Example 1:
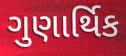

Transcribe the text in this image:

ગુણાર્થિક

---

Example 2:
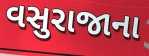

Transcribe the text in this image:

વસુરાજાના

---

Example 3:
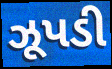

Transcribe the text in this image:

ઝૂપડી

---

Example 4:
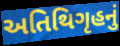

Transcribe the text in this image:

અતિથિગૃહનું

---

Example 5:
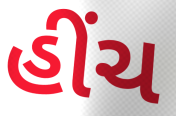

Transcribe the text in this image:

હીંચ